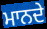
ਮਾਨਦੇ